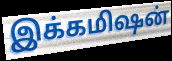
இக்கமிஷன்